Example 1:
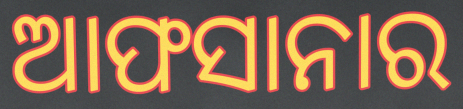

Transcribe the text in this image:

ଆଫସାନାର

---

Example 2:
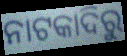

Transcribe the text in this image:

ନାଟକାଦିରୁ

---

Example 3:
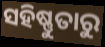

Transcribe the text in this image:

ସହିଷ୍ଣୁତାରୁ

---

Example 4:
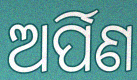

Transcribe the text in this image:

ଅର୍ପିଣ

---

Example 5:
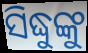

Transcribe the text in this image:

ସିଦ୍ଧୁଙ୍କୁ